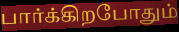
பார்க்கிறபோதும்